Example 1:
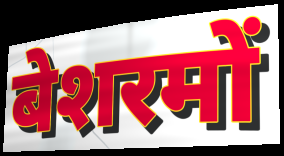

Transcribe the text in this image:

बेशरमों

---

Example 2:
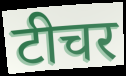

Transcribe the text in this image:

टीचर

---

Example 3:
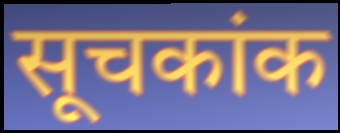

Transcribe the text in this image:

सूचकांक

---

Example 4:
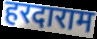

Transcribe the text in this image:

हरदाराम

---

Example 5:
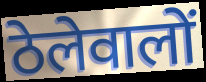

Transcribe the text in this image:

ठेलेवालों